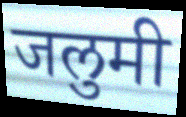
जलुमी